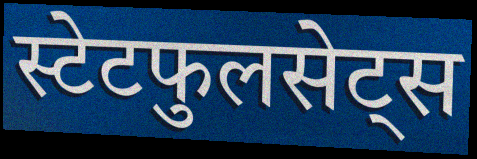
स्टेटफुलसेट्स